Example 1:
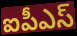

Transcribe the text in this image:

ఐపీఎస్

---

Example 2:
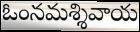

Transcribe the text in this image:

ఓంనమశ్శివాయ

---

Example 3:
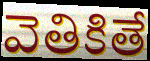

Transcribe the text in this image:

వెతికితే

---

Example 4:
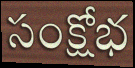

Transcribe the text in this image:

సంక్షోభ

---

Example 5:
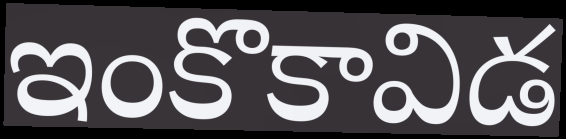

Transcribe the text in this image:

ఇంకొకావిడ